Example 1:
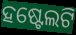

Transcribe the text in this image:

ହଷ୍ଟେଲଟି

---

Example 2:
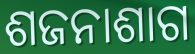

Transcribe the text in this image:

ଶଜନାଶାଗ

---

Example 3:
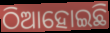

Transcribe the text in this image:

ଠିଆହୋଇଛି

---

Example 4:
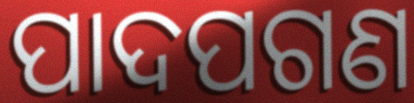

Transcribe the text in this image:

ପାଦପଗଣ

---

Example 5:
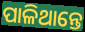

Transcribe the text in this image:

ପାଳିଥାନ୍ତେ